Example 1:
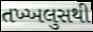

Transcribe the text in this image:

તખ્ખલુસથી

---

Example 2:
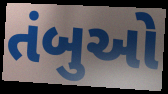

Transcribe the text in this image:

તંબુઓ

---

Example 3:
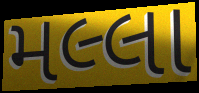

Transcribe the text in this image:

મલ્લા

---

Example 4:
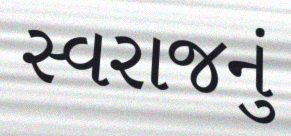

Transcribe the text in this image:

સ્વરાજનું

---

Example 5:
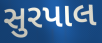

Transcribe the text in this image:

સુરપાલ